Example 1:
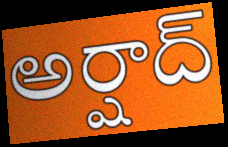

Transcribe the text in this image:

అర్షాద్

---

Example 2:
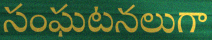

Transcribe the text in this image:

సంఘటనలుగా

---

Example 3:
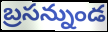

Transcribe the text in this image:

బ్రసన్నుండ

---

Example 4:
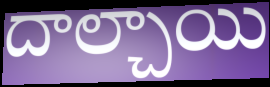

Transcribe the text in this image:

దాల్చాయి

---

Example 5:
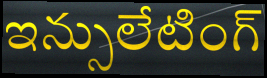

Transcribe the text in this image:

ఇన్సులేటింగ్